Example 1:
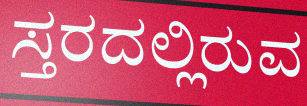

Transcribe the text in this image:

ಸ್ತರದಲ್ಲಿರುವ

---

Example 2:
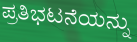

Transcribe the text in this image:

ಪ್ರತಿಭಟನೆಯನ್ನು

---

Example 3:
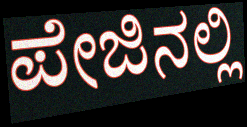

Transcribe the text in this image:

ಪೇಜಿನಲ್ಲಿ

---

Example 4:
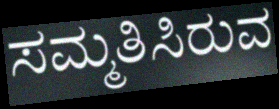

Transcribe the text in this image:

ಸಮ್ಮತಿಸಿರುವ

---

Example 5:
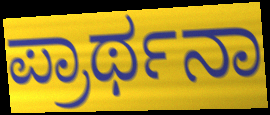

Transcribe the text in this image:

ಪ್ರಾರ್ಥನಾ